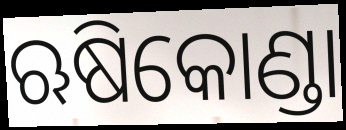
ଋଷିକୋଣ୍ଡା